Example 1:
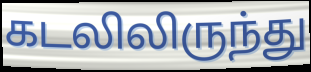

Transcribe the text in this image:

கடலிலிருந்து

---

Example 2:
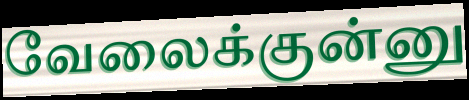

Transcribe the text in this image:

வேலைக்குன்னு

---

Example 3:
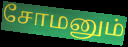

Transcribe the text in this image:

சோமனும்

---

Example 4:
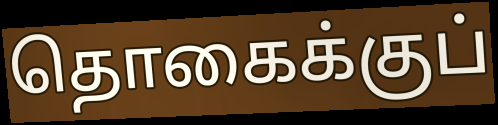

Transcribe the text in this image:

தொகைக்குப்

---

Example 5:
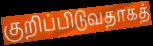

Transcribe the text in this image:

குறிப்பிடுவதாகத்